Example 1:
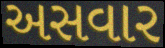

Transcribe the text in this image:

અસવાર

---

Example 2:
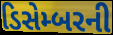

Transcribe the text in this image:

ડિસેમ્બરની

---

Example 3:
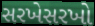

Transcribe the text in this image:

સરખેસરખો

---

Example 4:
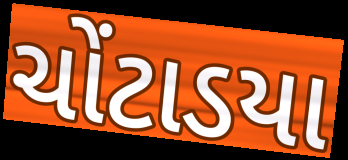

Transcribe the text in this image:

ચોંટાડયા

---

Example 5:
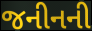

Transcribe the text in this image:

જનીનની